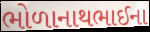
ભોળાનાથભાઈના